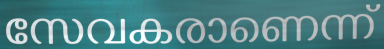
സേവകരാണെന്ന്